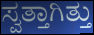
ಸ್ವತ್ತಾಗಿತ್ತು